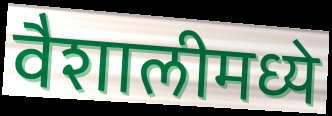
वैशालीमध्ये